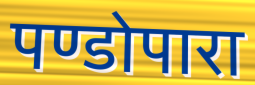
पण्डोपारा